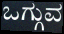
ಒಗ್ಗುವ